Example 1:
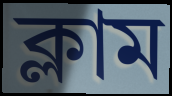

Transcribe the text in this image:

ক্লাম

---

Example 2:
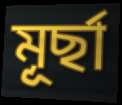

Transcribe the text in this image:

মূর্ছা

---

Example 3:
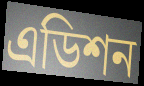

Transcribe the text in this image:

এডিশন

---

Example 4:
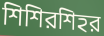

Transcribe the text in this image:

শিশিরশিহর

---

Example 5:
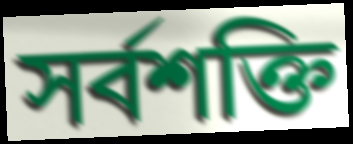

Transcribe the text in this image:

সর্বশক্তি